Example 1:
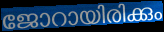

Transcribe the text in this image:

ജോറായിരിക്കും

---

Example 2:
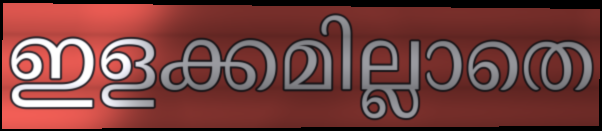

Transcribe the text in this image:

ഇളക്കമില്ലാതെ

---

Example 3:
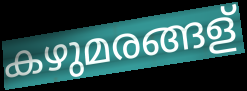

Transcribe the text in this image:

കഴുമരങ്ങള്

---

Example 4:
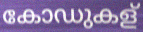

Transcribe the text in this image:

കോഡുകള്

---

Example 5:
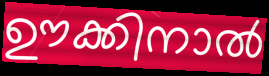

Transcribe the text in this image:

ഊക്കിനാൽ